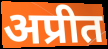
अप्रीत